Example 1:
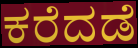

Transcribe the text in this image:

ಕರೆದಡೆ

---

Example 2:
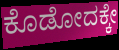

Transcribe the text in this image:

ಕೊಡೋದಕ್ಕೇ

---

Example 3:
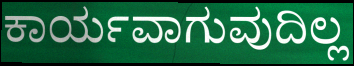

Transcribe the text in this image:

ಕಾರ್ಯವಾಗುವುದಿಲ್ಲ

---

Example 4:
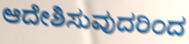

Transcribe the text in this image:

ಆದೇಶಿಸುವುದರಿಂದ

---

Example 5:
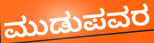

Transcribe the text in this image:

ಮುಡುಪವರ